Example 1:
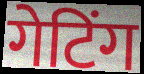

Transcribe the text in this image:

गेटिंग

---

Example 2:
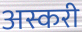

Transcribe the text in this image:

अस्करी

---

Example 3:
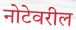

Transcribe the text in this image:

नोटेवरील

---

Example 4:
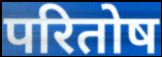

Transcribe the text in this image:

परितोष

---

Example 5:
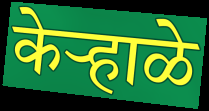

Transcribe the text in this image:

केऱ्हाळे